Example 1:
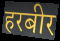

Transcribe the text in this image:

हरबीर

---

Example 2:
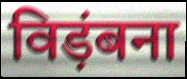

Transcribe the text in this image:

विड़ंबना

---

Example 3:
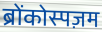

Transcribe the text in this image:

ब्रोंकोस्पज़म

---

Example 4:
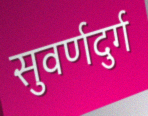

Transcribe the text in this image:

सुवर्णदुर्ग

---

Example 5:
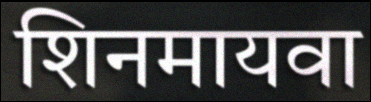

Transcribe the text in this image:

शिनमायवा